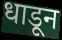
धाडून